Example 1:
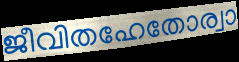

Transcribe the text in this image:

ജീവിതഹേതോര്വാ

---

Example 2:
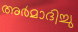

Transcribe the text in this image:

അർമാദിച്ചു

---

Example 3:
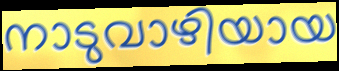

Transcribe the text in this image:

നാടുവാഴിയായ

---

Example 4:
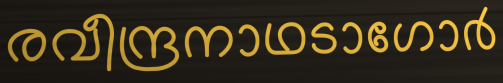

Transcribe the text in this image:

രവീന്ദ്രനാഥടാഗോർ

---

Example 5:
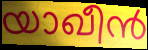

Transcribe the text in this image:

യാഖീൻ